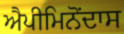
ਐਪੀਮਿਨੋਂਦਾਸ